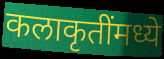
कलाकृतींमध्ये